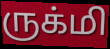
ருக்மி